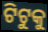
ଟିଟୁକୁ